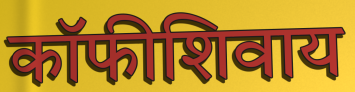
कॉफीशिवाय